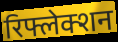
रिफ्लेक्शन